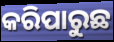
କରିପାରୁଛ